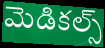
మెడికల్స్